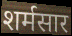
शर्मसार